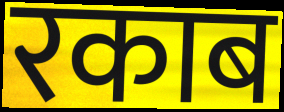
रकाब